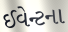
ઈવેન્ટના